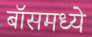
बॉसमध्ये